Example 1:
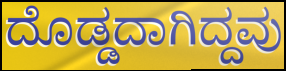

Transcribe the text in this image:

ದೊಡ್ಡದಾಗಿದ್ದವು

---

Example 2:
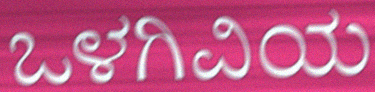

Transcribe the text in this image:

ಒಳಗಿವಿಯ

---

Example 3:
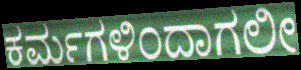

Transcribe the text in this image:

ಕರ್ಮಗಳಿಂದಾಗಲೀ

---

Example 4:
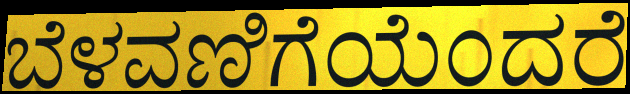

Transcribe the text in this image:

ಬೆಳವಣಿಗೆಯೆಂದರೆ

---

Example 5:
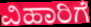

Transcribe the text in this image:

ವಿಹಾರಿಗೆ